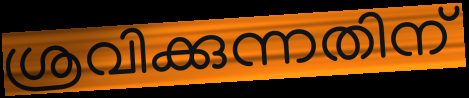
ശ്രവിക്കുന്നതിന്